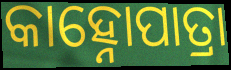
କାହ୍ନୋପାତ୍ରା